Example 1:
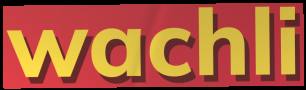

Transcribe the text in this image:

wachli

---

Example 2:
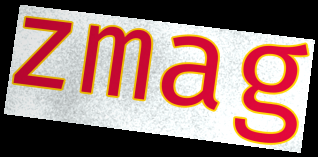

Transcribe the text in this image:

zmag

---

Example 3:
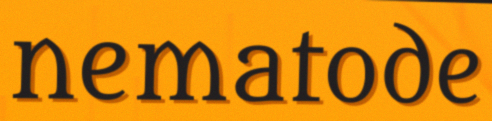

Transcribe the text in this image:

nematode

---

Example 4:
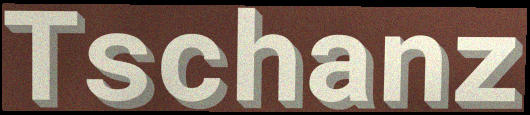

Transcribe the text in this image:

Tschanz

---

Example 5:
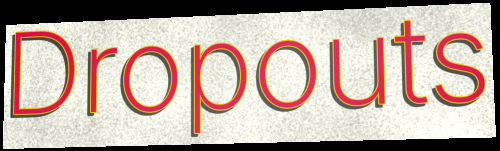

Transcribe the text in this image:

Dropouts